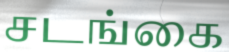
சடங்கை